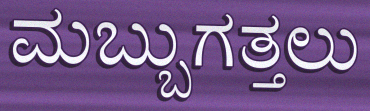
ಮಬ್ಬುಗತ್ತಲು